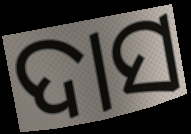
ଦାସ